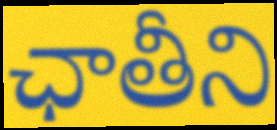
ఛాతీని